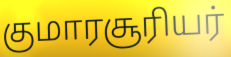
குமாரசூரியர்